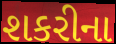
શકરીના